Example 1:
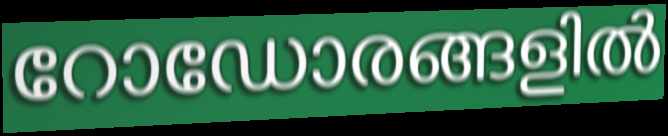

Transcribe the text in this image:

റോഡോരങ്ങളിൽ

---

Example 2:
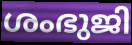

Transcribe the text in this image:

ശംഭുജി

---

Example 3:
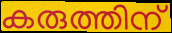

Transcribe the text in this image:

കരുത്തിന്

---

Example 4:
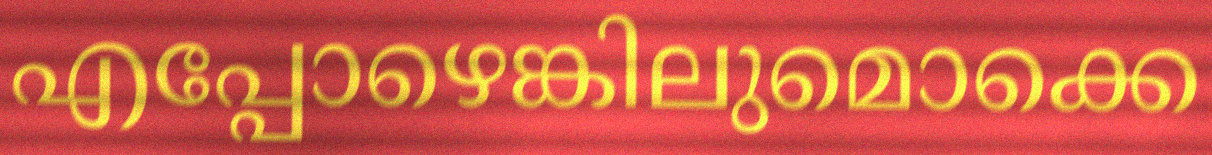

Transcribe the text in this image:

എപ്പോഴെങ്കിലുമൊക്കെ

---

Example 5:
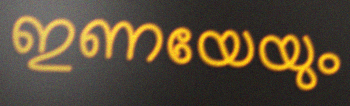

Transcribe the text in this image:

ഇണയേയും